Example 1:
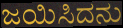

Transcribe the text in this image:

ಜಯಿಸಿದನು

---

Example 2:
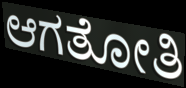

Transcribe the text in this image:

ಆಗತೋತಿ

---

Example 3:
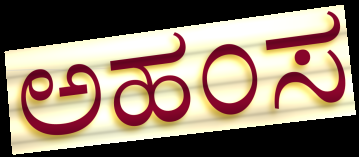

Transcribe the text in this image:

ಅಹಂಸ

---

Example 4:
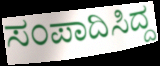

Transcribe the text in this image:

ಸಂಪಾದಿಸಿದ್ದ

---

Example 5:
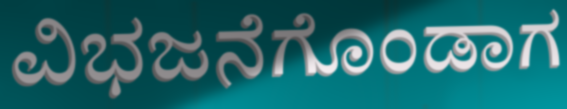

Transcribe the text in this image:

ವಿಭಜನೆಗೊಂಡಾಗ